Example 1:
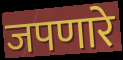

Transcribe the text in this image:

जपणारे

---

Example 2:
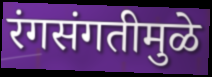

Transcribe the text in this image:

रंगसंगतीमुळे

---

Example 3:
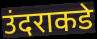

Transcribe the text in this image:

उंदराकडे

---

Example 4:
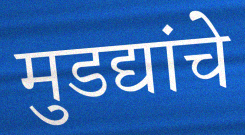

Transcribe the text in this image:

मुडद्यांचे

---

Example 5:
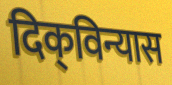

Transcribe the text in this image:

दिक्‌विन्यास